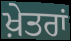
ਖ਼ੇਤਰਾਂ